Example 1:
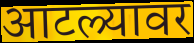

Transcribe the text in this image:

आटल्यावर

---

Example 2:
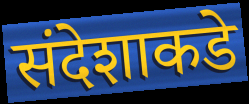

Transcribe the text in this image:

संदेशाकडे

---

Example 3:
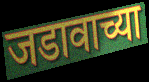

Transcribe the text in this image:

जडावाच्या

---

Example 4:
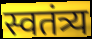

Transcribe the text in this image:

स्वतंत्र्य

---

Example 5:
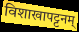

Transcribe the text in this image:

विशाखापट्टनम्